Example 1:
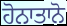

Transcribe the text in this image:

ਹੋਨਾਤਾਨੋ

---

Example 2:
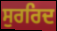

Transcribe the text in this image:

ਸੁਰਰਿਦ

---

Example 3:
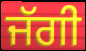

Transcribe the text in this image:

ਜੱਗੀ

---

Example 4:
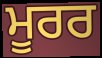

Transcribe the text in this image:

ਮੂਰਰ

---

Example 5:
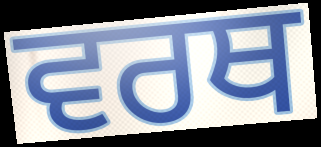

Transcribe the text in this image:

ਵਰਥ